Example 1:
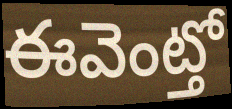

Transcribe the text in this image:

ఈవెంట్తో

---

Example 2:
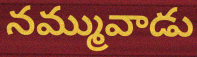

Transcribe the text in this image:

నమ్మువాడు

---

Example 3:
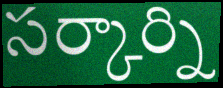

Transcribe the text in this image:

సర్కార్ని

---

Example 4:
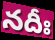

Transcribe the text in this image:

నదీః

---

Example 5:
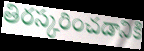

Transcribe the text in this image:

తిరస్కరించడానికి